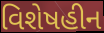
વિશેષહીન